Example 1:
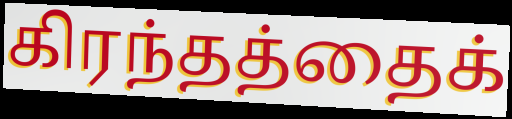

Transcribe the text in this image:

கிரந்தத்தைக்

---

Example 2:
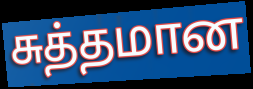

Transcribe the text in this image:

சுத்தமான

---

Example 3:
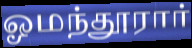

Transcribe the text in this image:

ஓமந்தூரார்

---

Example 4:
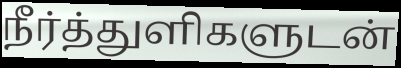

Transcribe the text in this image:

நீர்த்துளிகளுடன்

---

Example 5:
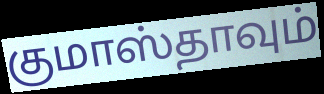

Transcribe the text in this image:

குமாஸ்தாவும்